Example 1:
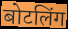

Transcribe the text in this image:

बोटलिंग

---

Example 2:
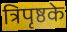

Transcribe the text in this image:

त्रिपृष्ठके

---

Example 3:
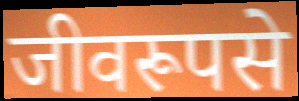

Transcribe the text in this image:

जीवरूपसे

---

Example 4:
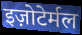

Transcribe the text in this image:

इज़ोटेर्मल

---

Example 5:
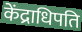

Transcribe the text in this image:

केंद्राधिपति